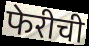
फेरीची